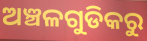
ଅଞ୍ଚଳଗୁଡିକରୁ